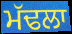
ਮੱਢਲਾ